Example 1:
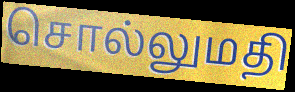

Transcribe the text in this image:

சொல்லுமதி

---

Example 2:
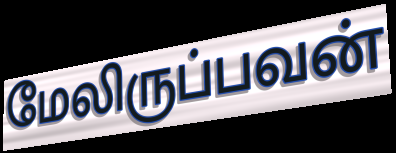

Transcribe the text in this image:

மேலிருப்பவன்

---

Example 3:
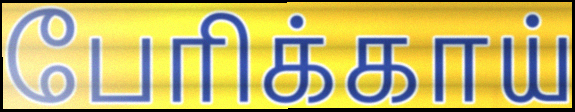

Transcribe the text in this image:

பேரிக்காய்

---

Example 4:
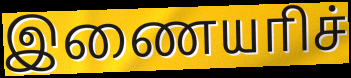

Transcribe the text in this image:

இணையரிச்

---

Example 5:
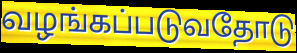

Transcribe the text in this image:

வழங்கப்படுவதோடு